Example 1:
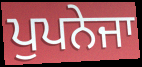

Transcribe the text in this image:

ਪੁਪਨੇਜਾ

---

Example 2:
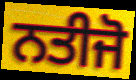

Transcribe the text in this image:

ਨਤੀਜੋ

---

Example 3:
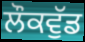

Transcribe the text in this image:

ਲੌਕਵੁੱਡ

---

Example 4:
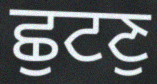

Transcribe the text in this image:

ਛੁਟਣੁ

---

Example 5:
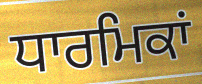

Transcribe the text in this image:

ਧਾਰਮਿਕਾਂ